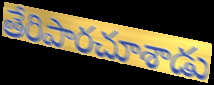
తేరిపారచూశాడు